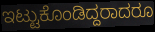
ಇಟ್ಟುಕೊಂಡಿದ್ದರಾದರೂ